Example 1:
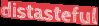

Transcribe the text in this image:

distasteful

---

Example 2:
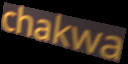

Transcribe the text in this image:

chakwa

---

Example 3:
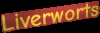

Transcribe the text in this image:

Liverworts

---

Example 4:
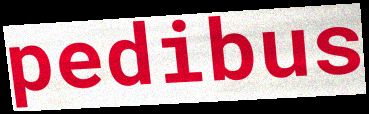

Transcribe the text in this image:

pedibus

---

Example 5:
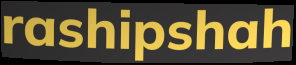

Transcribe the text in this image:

rashipshah